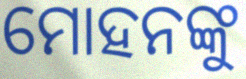
ମୋହନଙ୍କୁ